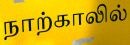
நாற்காலில்